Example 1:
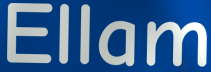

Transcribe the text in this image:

Ellam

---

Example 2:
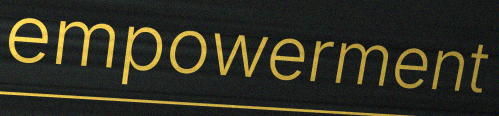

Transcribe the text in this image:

empowerment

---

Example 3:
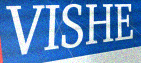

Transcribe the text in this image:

VISHE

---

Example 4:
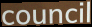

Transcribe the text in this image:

council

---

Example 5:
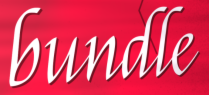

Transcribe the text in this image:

bundle